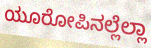
ಯೂರೋಪಿನಲ್ಲೆಲ್ಲಾ